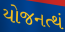
યોજનત્થં